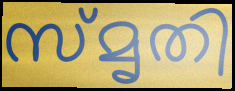
സ്മൃതി